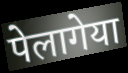
पेलागेया